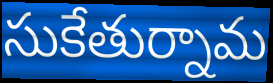
సుకేతుర్నామ